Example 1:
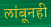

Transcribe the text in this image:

लांबूनही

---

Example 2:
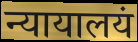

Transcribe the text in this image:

न्यायालयं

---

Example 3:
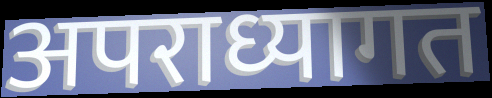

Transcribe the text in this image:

अपराध्यागत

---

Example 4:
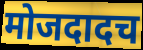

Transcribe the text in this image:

मोजदादच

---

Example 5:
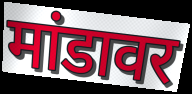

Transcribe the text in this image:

मांडावर